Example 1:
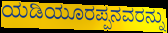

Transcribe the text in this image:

ಯಡಿಯೂರಪ್ಪನವರನ್ನು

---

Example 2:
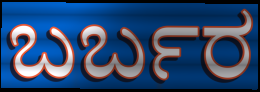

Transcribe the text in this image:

ಬರ್ಬರ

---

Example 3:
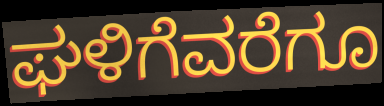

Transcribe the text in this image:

ಘಳಿಗೆವರೆಗೂ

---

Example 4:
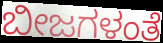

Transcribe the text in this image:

ಬೀಜಗಳಂತೆ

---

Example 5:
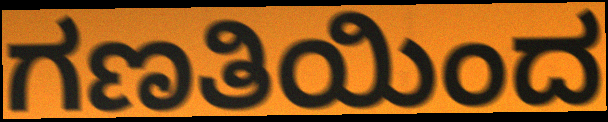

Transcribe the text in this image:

ಗಣತಿಯಿಂದ